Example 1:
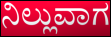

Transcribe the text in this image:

ನಿಲ್ಲುವಾಗ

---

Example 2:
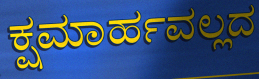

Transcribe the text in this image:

ಕ್ಷಮಾರ್ಹವಲ್ಲದ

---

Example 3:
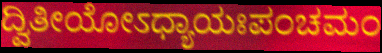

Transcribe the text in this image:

ದ್ವಿತೀಯೋಽಧ್ಯಾಯಃಪಂಚಮಂ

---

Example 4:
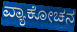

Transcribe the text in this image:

ವ್ಯಾಕೋಚನ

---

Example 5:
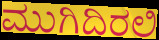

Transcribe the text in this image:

ಮುಗಿದಿರಲಿ